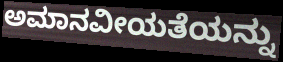
ಅಮಾನವೀಯತೆಯನ್ನು